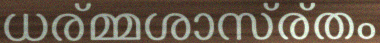
ധര്മ്മശാസ്ര്തം